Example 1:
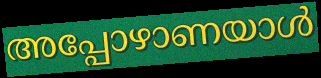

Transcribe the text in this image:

അപ്പോഴാണയാൾ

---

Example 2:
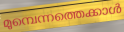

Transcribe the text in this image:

മുമ്പെന്നത്തെക്കാൾ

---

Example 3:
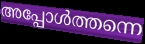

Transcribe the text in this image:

അപ്പോൾത്തന്നെ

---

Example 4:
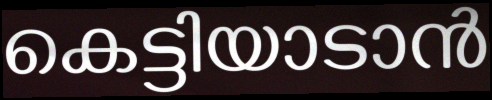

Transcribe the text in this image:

കെട്ടിയാടാൻ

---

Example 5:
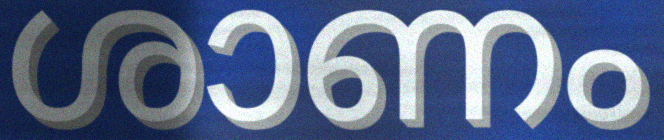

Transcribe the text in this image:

ശാണം